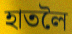
হাতলৈ